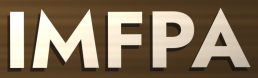
IMFPA